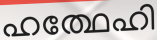
ഹത്ഥേഹി